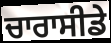
ਚਾਰਾਸੀਡੇ